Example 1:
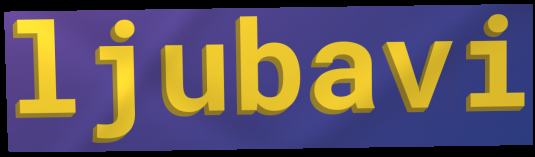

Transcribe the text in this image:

ljubavi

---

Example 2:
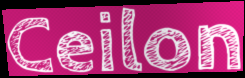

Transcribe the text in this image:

Ceilon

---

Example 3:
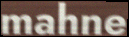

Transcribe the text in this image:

mahne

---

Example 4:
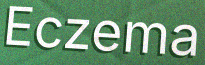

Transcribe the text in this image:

Eczema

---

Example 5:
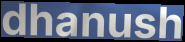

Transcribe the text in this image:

dhanush